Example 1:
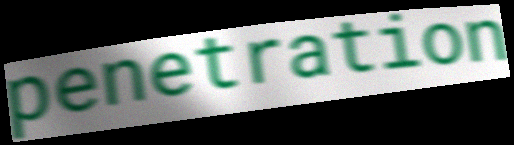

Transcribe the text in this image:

penetration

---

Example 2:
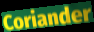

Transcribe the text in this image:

Coriander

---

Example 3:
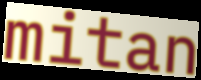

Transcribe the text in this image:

mitan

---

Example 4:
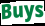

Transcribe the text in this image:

Buys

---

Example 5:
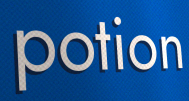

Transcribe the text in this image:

potion